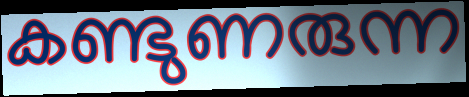
കണ്ടുണരുന്ന